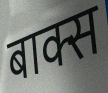
बाक्स